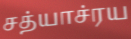
சத்யாச்ரய